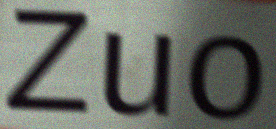
Zuo